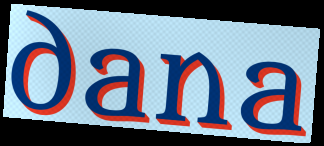
dana